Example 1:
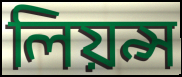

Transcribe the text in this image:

লিয়ন্স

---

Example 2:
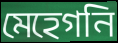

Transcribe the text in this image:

মেহেগনি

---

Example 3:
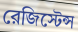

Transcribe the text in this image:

রেজিস্টেন্স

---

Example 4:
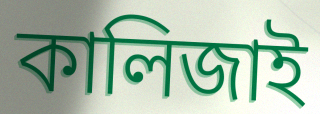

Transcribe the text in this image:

কালিজাই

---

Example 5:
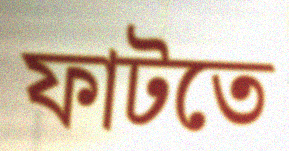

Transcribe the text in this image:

ফাটতে